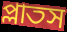
প্লাতস